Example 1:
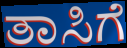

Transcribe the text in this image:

ತಾಸಿಗೆ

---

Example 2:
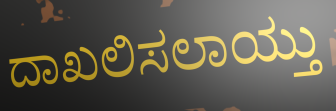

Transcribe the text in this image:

ದಾಖಲಿಸಲಾಯ್ತು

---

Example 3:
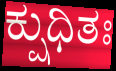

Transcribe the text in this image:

ಕ್ಷುಧಿತಃ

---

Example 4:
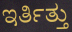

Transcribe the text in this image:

ಇರ್ತಿತ್ತು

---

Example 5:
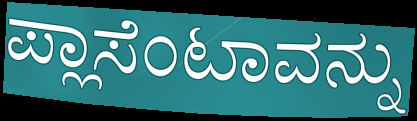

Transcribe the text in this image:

ಪ್ಲಾಸೆಂಟಾವನ್ನು